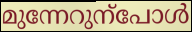
മുന്നേറുന്പോൾ